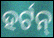
ହର୍ଟନ୍